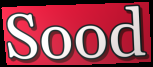
Sood